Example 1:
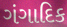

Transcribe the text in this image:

ગંગાદિક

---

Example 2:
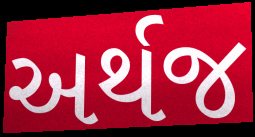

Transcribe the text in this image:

અર્થજ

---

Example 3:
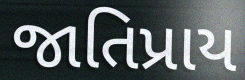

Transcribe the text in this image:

જાતિપ્રાય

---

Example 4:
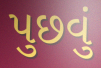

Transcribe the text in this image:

પુછવું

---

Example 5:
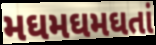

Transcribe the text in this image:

મઘમઘમઘતાં